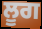
ਲੂਗ